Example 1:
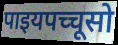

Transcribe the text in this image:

पाइयपच्चूसो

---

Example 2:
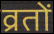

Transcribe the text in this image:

व्रतों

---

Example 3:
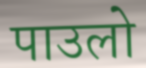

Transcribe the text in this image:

पाउलो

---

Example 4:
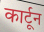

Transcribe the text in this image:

कार्टून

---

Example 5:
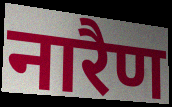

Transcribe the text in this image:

नारैण